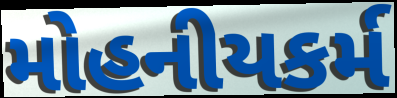
મોહનીયકર્મ